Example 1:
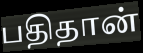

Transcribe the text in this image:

பதிதான்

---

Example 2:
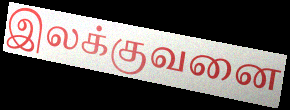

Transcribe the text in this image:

இலக்குவனை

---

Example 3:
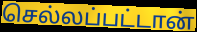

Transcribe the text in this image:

செல்லப்பட்டான்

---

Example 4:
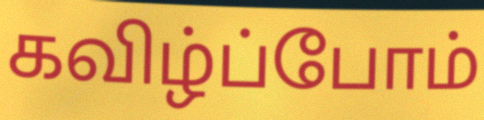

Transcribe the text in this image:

கவிழ்ப்போம்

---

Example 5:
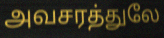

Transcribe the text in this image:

அவசரத்துலே